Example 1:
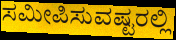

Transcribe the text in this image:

ಸಮೀಪಿಸುವಷ್ಟರಲ್ಲಿ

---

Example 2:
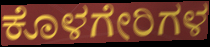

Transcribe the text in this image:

ಕೊಳಗೇರಿಗಳ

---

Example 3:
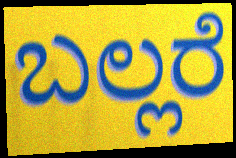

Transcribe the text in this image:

ಬಲ್ಲರೆ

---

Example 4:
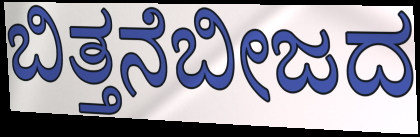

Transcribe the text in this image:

ಬಿತ್ತನೆಬೀಜದ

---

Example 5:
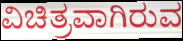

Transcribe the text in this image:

ವಿಚಿತ್ರವಾಗಿರುವ